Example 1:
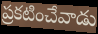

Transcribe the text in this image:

ప్రకటించేవాడు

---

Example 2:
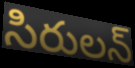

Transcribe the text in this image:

సిరులన్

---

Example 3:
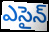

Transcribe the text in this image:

ఎసైన్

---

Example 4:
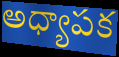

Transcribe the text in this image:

అధ్యాపక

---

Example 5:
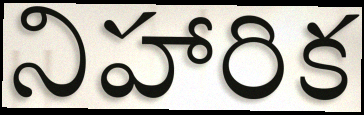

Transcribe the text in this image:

నిహారిక